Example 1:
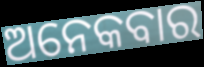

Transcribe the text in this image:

ଅନେକବାର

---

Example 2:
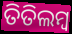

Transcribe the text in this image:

ତିତିଲମ୍ଵ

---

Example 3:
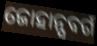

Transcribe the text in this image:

ଜୋହାନ୍ସବର୍ଗ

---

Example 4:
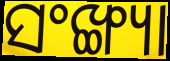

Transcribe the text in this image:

ସଂଙ୍ଖ୍ଯା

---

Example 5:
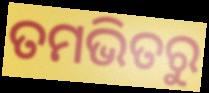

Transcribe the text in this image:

ତମଭିତରୁ